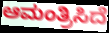
ಆಮಂತ್ರಿಸಿದೆ